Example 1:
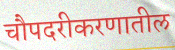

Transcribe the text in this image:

चौपदरीकरणातील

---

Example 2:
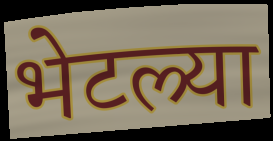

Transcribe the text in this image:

भेटल्या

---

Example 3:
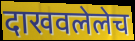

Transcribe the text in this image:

दाखवलेलेच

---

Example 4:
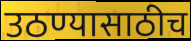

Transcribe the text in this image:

उठण्यासाठीच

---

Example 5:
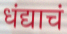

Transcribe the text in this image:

धंद्याचं